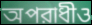
অপরাধীও